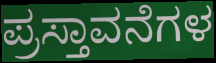
ಪ್ರಸ್ತಾವನೆಗಳ